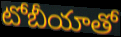
టోబీయాతో